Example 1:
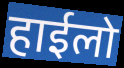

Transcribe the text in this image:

हाईलो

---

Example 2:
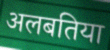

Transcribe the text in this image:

अलबतिया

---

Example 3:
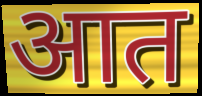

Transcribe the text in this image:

आत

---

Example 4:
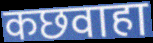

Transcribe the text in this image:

कछवाहा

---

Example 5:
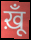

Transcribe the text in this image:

ख़ूँ